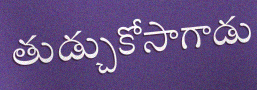
తుడ్చుకోసాగాడు